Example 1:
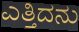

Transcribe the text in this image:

ಎತ್ತಿದನು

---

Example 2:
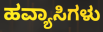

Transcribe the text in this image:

ಹವ್ಯಾಸಿಗಳು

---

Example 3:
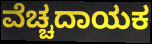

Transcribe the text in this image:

ವೆಚ್ಚದಾಯಕ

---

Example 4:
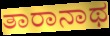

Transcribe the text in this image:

ತಾರಾನಾಥ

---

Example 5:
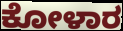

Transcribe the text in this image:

ಕೋಳಾರ